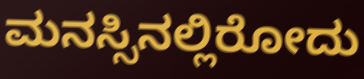
ಮನಸ್ಸಿನಲ್ಲಿರೋದು